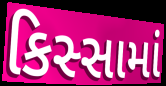
કિસ્સામાં